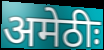
अमेठीः